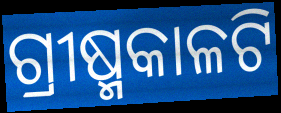
ଗ୍ରୀଷ୍ମକାଳଟି